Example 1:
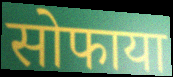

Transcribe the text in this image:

सोफाया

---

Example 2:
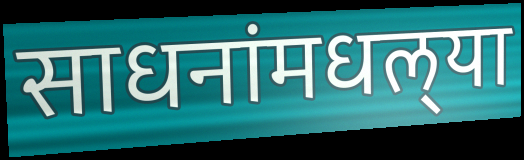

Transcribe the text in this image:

साधनांमधल्या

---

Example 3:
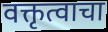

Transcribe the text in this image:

वक्तृत्वाचा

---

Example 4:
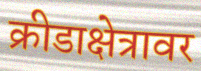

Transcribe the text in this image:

क्रीडाक्षेत्रावर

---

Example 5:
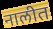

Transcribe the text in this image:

नालीत